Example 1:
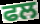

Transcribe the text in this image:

ਫਲ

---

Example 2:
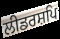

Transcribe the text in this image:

ਲੀਡਰਸ਼ਪਿ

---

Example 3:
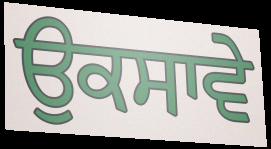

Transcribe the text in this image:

ਉਕਸਾਵੇ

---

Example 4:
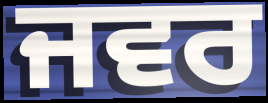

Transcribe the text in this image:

ਜਵਰ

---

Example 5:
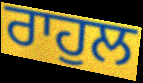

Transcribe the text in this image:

ਰਾਹੁਲ